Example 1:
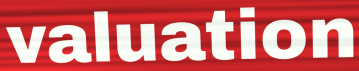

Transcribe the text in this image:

valuation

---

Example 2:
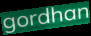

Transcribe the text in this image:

gordhan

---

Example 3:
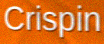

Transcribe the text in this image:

Crispin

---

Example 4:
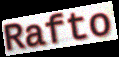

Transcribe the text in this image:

Rafto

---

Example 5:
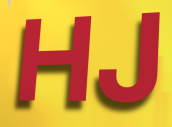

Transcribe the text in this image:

HJ